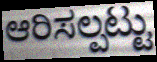
ಆರಿಸಲ್ಪಟ್ಟು